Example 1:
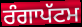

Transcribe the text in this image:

ਰੰਗਾਪੱਟਮ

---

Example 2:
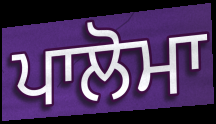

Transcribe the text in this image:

ਪਾਲੋਮਾ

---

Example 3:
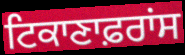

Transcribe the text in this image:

ਟਿਕਾਣਾਫ਼ਰਾਂਸ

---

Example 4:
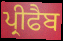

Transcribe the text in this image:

ਪ੍ਰੀਫੈਬ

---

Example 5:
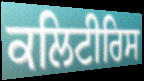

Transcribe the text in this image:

ਕਲਿਟੀਰਿਸ